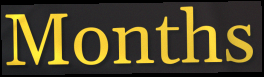
Months